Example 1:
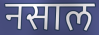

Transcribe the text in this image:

नसाल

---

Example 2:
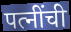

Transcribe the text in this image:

पत्नींची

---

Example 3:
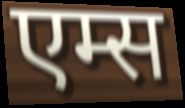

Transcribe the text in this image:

एम्स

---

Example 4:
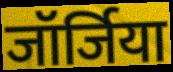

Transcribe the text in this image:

जॉर्जिया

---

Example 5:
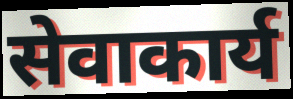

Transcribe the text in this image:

सेवाकार्य